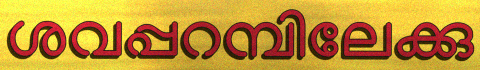
ശവപ്പറമ്പിലേക്കു